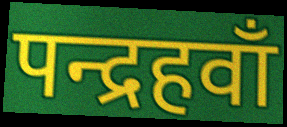
पन्द्रहवाँ